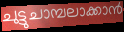
ചുട്ടുചാമ്പലാക്കാൻ